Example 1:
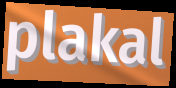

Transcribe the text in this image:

plakal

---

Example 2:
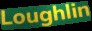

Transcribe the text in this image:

Loughlin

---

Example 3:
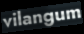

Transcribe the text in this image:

vilangum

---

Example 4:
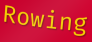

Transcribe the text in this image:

Rowing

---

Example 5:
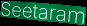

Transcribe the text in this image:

Seetaram